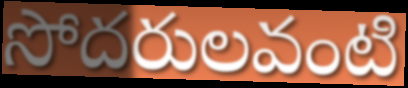
సోదరులవంటి